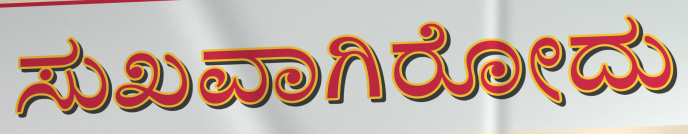
ಸುಖವಾಗಿರೋದು